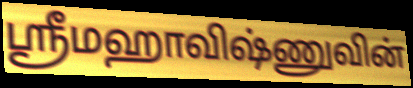
ஸ்ரீமஹாவிஷ்ணுவின்